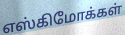
எஸ்கிமோக்கள்